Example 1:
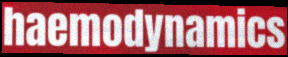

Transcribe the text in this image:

haemodynamics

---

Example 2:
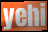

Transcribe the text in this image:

yehi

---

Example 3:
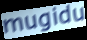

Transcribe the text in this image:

mugidu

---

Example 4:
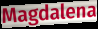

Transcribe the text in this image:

Magdalena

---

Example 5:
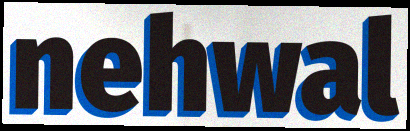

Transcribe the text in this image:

nehwal